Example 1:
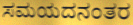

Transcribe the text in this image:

ಸಮಯದನಂತರ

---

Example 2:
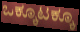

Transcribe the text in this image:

ಒಕ್ಕೂಟಕ್ಕೂ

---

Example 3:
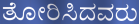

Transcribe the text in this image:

ತೋರಿಸಿದವರು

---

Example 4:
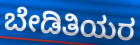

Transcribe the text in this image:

ಬೇಡಿತಿಯರ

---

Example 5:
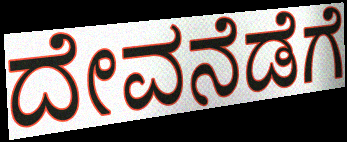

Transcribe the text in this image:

ದೇವನೆಡೆಗೆ